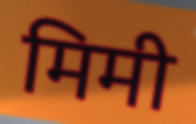
मिमी